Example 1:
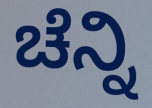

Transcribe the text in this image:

ಚೆನ್ನಿ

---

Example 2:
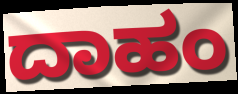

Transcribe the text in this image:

ದಾಹಂ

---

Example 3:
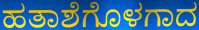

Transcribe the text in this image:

ಹತಾಶೆಗೊಳಗಾದ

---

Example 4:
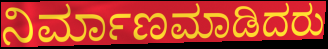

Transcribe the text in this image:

ನಿರ್ಮಾಣಮಾಡಿದರು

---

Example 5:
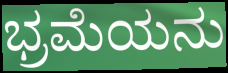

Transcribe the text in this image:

ಭ್ರಮೆಯನು